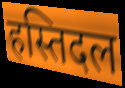
हस्तिदल